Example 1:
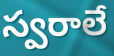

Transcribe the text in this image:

స్వరాలే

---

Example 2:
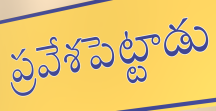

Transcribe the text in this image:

ప్రవేశపెట్టాడు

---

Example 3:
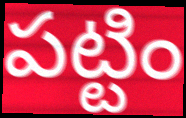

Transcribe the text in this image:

పట్టిం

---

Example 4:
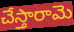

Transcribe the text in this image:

చేస్తారామె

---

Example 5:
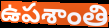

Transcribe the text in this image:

ఉపశాంతి